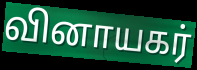
வினாயகர்